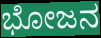
ಭೋಜನ